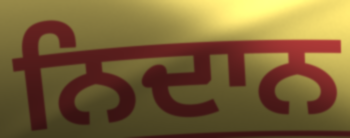
ਨਿਦਾਨ